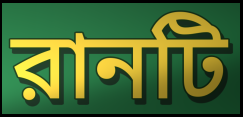
রানটি